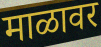
माळावर